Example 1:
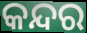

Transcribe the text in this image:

କନ୍ଦର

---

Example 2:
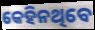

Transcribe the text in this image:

କେହିନଥିବେ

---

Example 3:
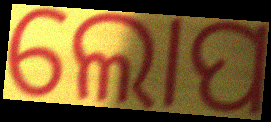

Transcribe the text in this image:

ଲୋପ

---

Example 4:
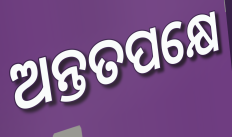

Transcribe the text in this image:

ଅନ୍ତତପକ୍ଷେ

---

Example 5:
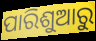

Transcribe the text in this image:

ପାରିଶୁଆରୁ